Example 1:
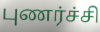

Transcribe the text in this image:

புணர்ச்சி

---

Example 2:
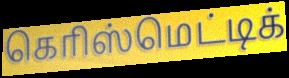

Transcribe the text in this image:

கெரிஸ்மெட்டிக்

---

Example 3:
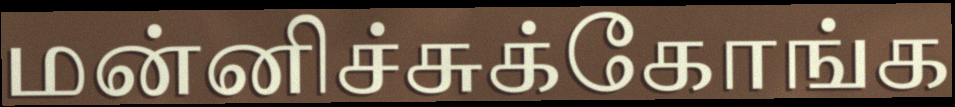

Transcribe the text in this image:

மன்னிச்சுக்கோங்க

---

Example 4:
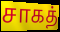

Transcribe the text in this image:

சாகத்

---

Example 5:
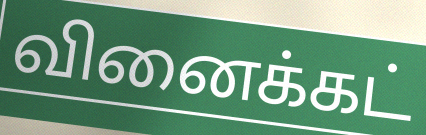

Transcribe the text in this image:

வினைக்கட்